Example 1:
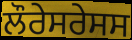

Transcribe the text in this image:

ਲੌਰੇਸਰੇਸਸ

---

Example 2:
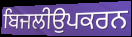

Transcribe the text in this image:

ਬਿਜਲੀਉਪਕਰਨ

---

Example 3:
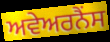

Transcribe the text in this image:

ਅਵੇਅਰਨੈਂਸ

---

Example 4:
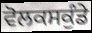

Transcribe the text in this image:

ਵੋਲਕਸਕੁੰਡੇ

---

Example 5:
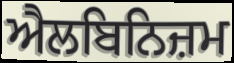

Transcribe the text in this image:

ਐਲਬਿਨਿਜ਼ਮ